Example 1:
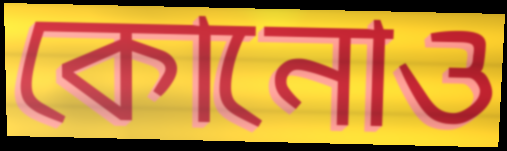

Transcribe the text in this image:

কোনোও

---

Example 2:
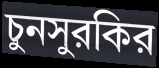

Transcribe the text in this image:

চুনসুরকির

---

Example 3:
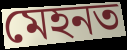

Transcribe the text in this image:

মেহনত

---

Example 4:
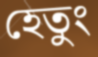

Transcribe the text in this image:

হেতুং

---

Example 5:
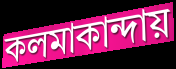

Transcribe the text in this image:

কলমাকান্দায়